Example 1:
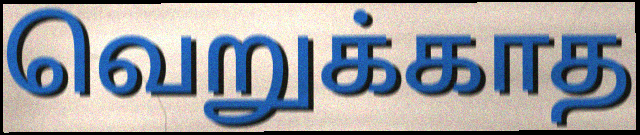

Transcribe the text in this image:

வெறுக்காத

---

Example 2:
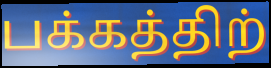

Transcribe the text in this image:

பக்கத்திற்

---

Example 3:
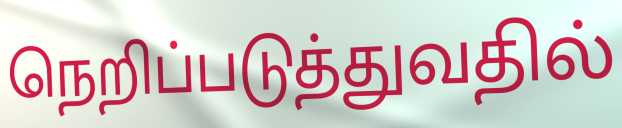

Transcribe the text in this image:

நெறிப்படுத்துவதில்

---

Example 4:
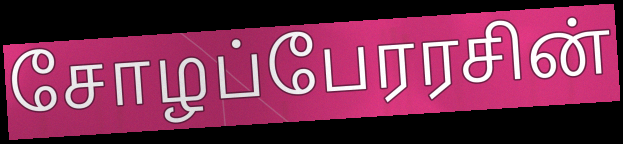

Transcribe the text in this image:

சோழப்பேரரசின்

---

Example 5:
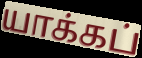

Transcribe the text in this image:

யாக்கப்